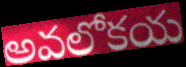
అవలోకయ